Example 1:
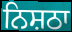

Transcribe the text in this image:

ਨਿਸ਼ਠਾ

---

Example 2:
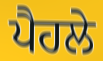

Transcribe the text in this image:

ਪੈਹਲੇ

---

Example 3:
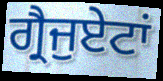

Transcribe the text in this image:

ਗ੍ਰੈਜੁਏਟਾਂ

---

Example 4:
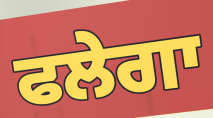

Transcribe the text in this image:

ਫਲੇਗਾ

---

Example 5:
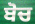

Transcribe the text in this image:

ਬੋਚ